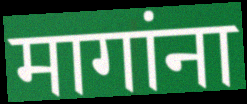
मागांना